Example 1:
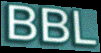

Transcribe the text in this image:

BBL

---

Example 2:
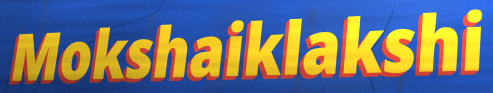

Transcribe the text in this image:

Mokshaiklakshi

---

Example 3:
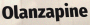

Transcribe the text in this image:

Olanzapine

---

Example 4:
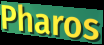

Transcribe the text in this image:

Pharos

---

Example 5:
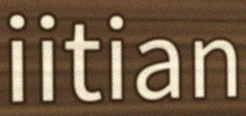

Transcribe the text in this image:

iitian